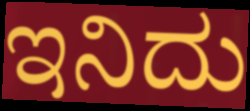
ಇನಿದು